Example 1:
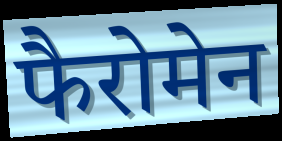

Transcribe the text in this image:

फैरोमेन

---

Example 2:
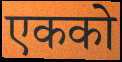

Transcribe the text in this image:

एकको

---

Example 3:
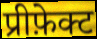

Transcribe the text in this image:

प्रीफ़ेक्ट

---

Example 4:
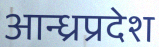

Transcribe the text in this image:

आन्ध्रप्रदेश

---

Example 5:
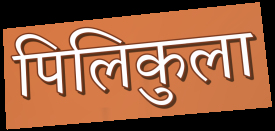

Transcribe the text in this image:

पिलिकुला